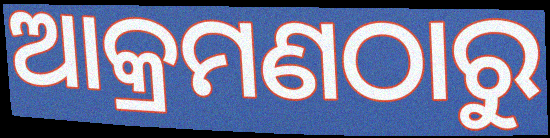
ଆକ୍ରମଣଠାରୁ